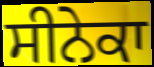
ਸੀਨੇਕਾ